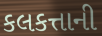
કલકત્તાની